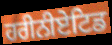
ਹਰੀਨੀਏਟਿਡ